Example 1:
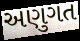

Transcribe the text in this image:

અણુગત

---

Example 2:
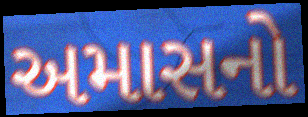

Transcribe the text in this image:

અમાસનો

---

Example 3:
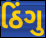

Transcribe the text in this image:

ઠિંગુ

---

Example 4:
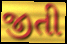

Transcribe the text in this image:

જીતી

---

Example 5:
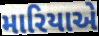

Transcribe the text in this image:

મારિયાએ